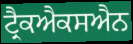
ਟ੍ਰੈਕਐਕਸਐਨ